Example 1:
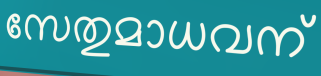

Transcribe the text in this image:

സേതുമാധവന്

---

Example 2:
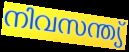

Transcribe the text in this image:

നിവസന്ത്യ്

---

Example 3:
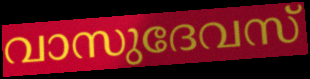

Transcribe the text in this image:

വാസുദേവസ്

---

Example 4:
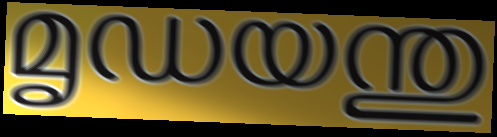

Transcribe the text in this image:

മൃഡയന്തു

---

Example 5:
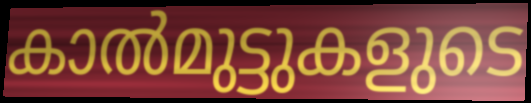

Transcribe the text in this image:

കാൽമുട്ടുകളുടെ